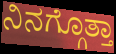
ನಿನಗ್ಗೊತ್ತಾ